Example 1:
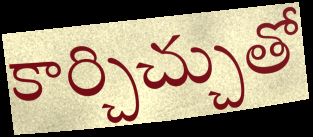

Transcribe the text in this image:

కార్చిచ్చుతో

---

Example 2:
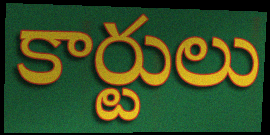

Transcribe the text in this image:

కార్టులు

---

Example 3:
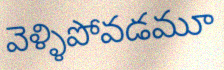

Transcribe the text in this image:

వెళ్ళిపోవడమూ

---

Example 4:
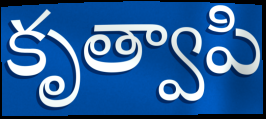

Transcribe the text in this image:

కృత్వాపి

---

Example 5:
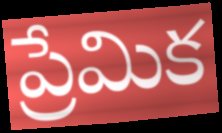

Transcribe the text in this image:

ప్రేమిక